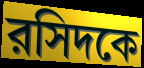
রসিদকে